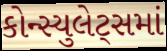
કોન્સ્યુલેટ્સમાં